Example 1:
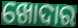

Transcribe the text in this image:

ଖୋଦାର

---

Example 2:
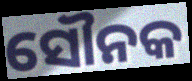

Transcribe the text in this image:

ସୌନକ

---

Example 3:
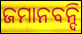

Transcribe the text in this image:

ଜମାନବନ୍ଦି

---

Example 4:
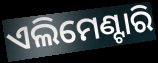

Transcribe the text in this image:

ଏଲିମେଣ୍ଟାରି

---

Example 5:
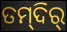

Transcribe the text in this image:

ତମ୍‍ଦିର୍